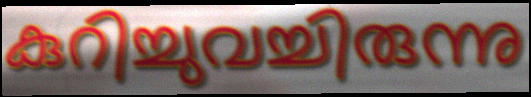
കുറിച്ചുവച്ചിരുന്നു